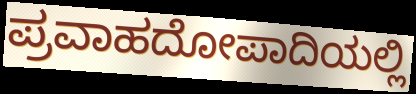
ಪ್ರವಾಹದೋಪಾದಿಯಲ್ಲಿ